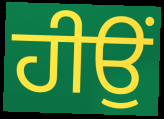
ਹੀਉਂ